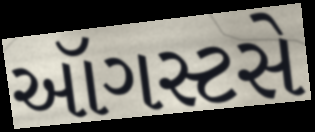
ઑગસ્ટસે